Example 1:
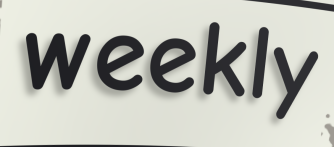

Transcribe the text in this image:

weekly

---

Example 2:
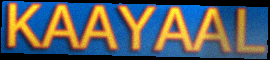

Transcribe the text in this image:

KAAYAAL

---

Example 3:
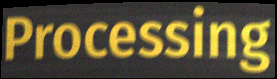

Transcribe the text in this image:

Processing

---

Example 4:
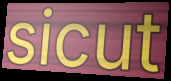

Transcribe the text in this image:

sicut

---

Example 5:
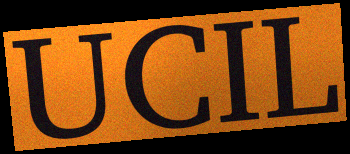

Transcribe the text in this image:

UCIL